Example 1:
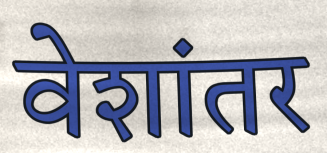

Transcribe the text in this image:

वेशांतर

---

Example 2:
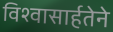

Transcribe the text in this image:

विश्वासार्हतेने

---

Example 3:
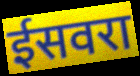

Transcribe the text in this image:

ईसवरा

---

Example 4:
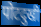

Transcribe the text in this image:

पोटदुखी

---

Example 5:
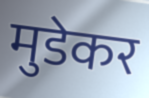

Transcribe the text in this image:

मुडेकर